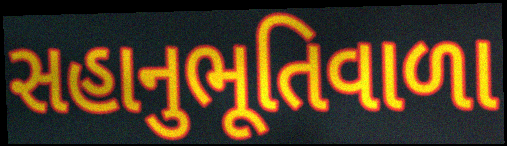
સહાનુભૂતિવાળા